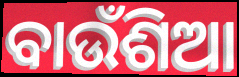
ବାଉଁଶିଆ